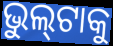
ଭୁଲ୍‍ଟାକୁ